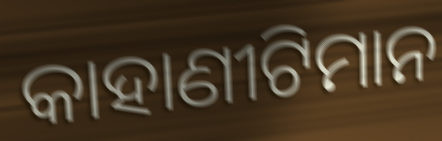
କାହାଣୀଟିମାନ